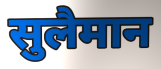
सुलैमान